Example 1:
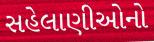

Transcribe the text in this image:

સહેલાણીઓનો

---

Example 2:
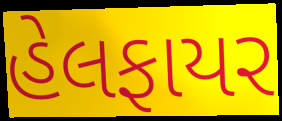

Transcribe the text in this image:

હેલફાયર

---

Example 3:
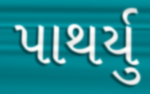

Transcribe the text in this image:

પાથર્યુ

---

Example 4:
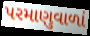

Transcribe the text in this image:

પરમાણુવાળાં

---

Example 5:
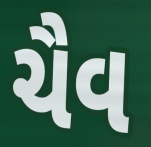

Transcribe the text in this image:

ચૈવ